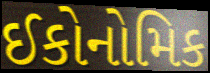
ઈકોનોમિક